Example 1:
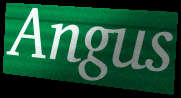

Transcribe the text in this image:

Angus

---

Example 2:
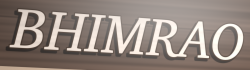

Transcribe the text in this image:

BHIMRAO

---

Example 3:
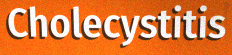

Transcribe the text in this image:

Cholecystitis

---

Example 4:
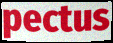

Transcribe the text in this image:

pectus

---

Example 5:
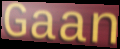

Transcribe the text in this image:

Gaan